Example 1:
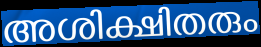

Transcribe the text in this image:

അശിക്ഷിതരും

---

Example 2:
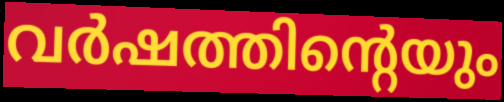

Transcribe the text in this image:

വർഷത്തിന്റെയും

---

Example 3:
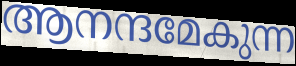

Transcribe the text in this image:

ആനന്ദമേകുന്ന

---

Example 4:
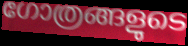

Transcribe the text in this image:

ഗോത്രങ്ങളുടെ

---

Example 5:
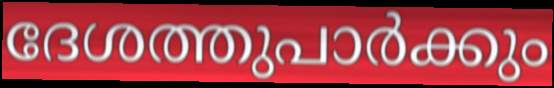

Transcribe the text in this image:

ദേശത്തുപാർക്കും